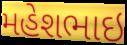
મહેશભાઇ